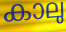
കാലു